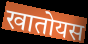
खातोयस